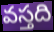
వస్తది